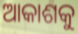
ଆକାଶକୁ